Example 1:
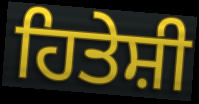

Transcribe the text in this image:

ਹਿਤੇਸ਼ੀ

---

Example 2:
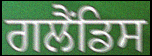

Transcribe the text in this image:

ਗਲੈਂਡਿਸ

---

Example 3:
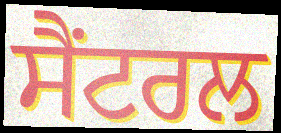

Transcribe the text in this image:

ਸੈਂਟਰਲ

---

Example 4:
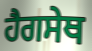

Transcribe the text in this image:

ਹੈਗਸੇਥ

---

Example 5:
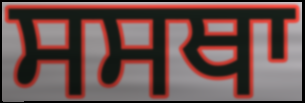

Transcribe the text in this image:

ਸਸਥਾ